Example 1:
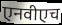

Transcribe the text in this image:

एनवीएच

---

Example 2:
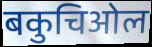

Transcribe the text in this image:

बकुचिओल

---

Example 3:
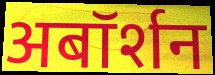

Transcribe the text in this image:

अबॉर्शन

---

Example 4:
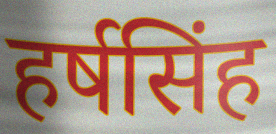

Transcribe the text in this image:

हर्षसिंह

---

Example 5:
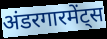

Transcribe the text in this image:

अंडरगारमेंट्स